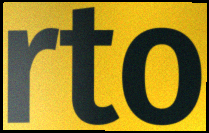
rto